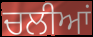
ਚਲੀਆਂ